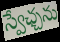
స్వేఛ్చను